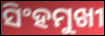
ସିଂହମୁଖୀ